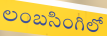
లంబసింగిలో